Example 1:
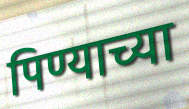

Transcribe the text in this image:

पिण्याच्या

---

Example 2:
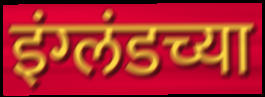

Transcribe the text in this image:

इंग्‍लंडच्या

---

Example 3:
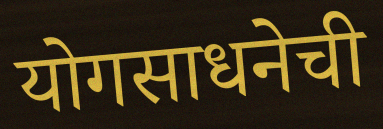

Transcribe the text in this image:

योगसाधनेची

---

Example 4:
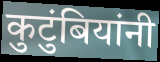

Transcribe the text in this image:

कुटुंबियांनी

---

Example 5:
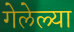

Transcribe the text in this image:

गेलेल्या